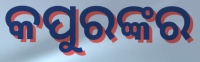
କପୁରଙ୍କର